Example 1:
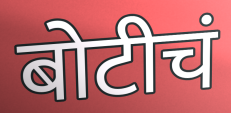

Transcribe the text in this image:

बोटीचं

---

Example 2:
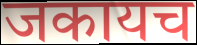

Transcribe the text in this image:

जकायच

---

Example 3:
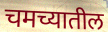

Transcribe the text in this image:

चमच्यातील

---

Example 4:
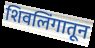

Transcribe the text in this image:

शिवलिंगातून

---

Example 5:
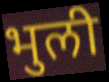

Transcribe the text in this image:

भुली